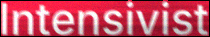
Intensivist